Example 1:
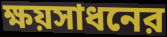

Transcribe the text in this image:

ক্ষয়সাধনের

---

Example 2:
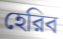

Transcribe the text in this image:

হেরিব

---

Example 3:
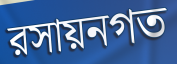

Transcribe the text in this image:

রসায়নগত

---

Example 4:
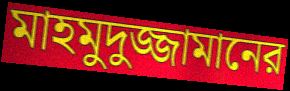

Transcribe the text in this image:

মাহমুদুজ্জামানের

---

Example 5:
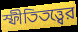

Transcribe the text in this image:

স্ফীতিতত্ত্বের